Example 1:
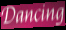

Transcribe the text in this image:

Dancing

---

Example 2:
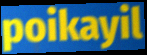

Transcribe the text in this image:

poikayil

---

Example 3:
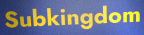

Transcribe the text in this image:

Subkingdom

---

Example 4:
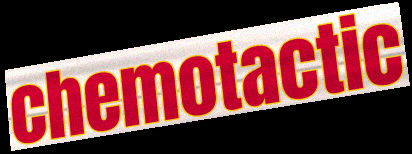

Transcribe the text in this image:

chemotactic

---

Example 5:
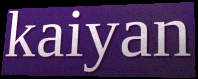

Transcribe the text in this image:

kaiyan